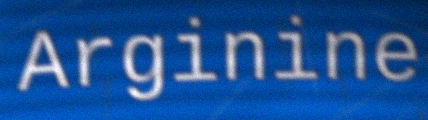
Arginine